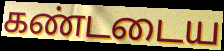
கண்டடைய